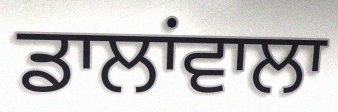
ਡਾਲਾਂਵਾਲਾ